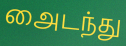
அைடந்து